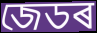
জেডৰ